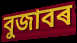
বুজাবৰ